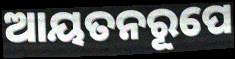
ଆୟତନରୂପେ